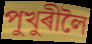
পুখুৰীলৈ